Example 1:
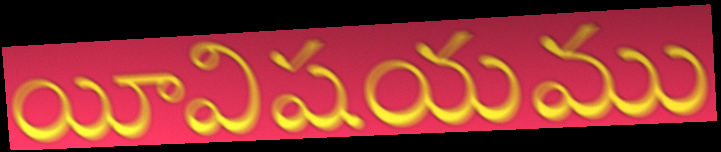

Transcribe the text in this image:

యీవిషయము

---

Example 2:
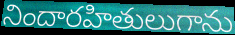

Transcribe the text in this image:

నిందారహితులుగాను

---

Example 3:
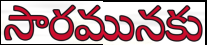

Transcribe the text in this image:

సారమునకు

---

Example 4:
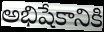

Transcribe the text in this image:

అభిషేకానికి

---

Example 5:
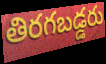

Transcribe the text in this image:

తిరగబడ్డరు